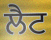
ਲੈਟ